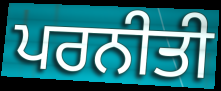
ਪਰਨੀਤੀ